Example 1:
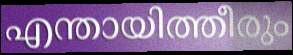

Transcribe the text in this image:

എന്തായിത്തീരും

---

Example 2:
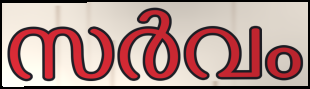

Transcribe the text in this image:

സർവം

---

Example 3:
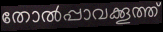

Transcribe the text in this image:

തോൽപ്പാവക്കൂത്ത്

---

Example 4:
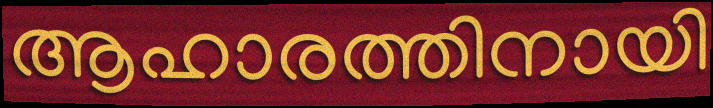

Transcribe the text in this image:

ആഹാരത്തിനായി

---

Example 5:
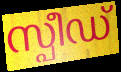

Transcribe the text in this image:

സ്പീഡ്